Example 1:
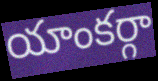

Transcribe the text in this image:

యాంకర్గా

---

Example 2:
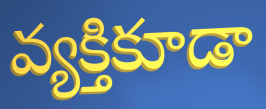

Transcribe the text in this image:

వ్యక్తికూడా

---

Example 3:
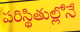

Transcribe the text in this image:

పరిస్థితుల్లోనే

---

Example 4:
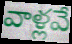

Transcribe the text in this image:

వాళ్లవే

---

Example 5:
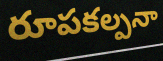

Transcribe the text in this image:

రూపకల్పనా